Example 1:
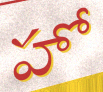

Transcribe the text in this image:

హో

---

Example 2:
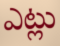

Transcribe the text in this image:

ఎట్లు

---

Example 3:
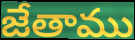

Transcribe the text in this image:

జేతాము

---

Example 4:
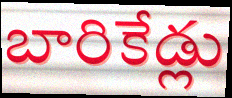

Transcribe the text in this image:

బారికేడ్లు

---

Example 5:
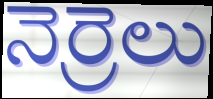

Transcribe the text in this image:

నెర్రెలు